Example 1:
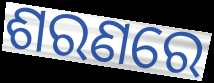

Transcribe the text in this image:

ଶରଣରେ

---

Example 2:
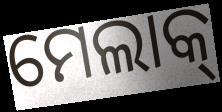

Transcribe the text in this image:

ମେଲାକ୍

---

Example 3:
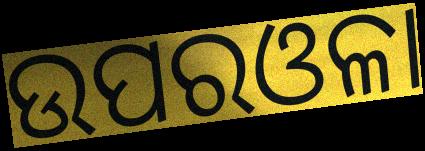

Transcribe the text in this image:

ଉପରଓଳା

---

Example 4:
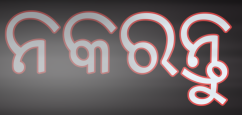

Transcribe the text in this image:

ନକରନ୍ତୁ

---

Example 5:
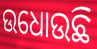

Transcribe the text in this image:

ଉଧୋଉଛି